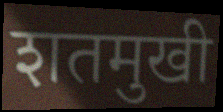
शतमुखी